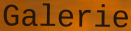
Galerie